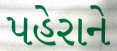
પહેરાને